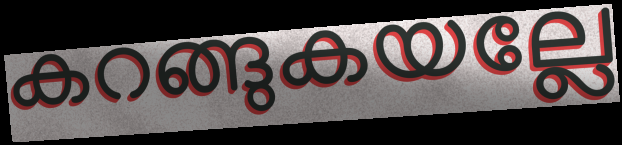
കറങ്ങുകയല്ലേ